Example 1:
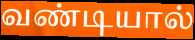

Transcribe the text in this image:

வண்டியால்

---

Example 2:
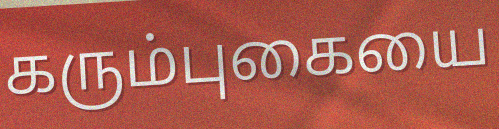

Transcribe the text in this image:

கரும்புகையை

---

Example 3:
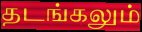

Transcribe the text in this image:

தடங்கலும்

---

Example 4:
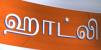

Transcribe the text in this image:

ஹாட்லி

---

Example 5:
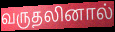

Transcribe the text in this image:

வருதலினால்